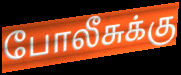
போலீசுக்கு